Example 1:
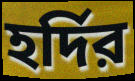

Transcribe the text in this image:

হর্দির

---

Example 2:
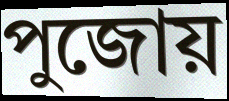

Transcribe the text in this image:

পুজোয়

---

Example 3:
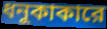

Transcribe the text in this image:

ধনুকাকারে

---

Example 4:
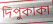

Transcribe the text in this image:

দিপুকাকা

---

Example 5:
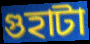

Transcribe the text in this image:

গুহাটা